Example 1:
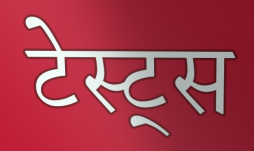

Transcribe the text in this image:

टेस्ट्स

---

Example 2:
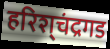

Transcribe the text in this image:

हरिश्चंद्रगड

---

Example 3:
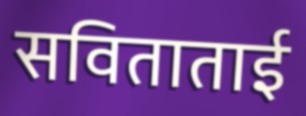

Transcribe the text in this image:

सविताताई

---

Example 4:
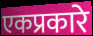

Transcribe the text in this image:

एकप्रकारे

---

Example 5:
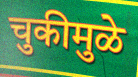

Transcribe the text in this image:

चुकीमुळे